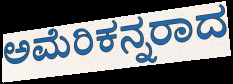
ಅಮೆರಿಕನ್ನರಾದ